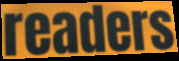
readers